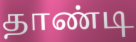
தாண்டி